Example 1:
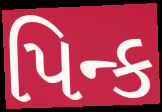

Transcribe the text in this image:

પિન્ક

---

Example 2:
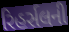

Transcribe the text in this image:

રિહર્સલની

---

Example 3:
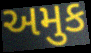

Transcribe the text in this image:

અમુક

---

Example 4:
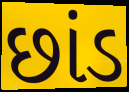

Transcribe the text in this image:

છાંડ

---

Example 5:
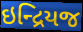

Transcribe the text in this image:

ઇન્દ્રિયજ